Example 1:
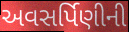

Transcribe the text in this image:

અવસર્પિણીની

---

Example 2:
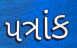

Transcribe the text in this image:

પત્રાંક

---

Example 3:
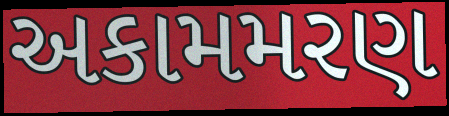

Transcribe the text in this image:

અકામમરણ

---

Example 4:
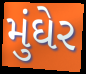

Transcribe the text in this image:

મુંઘેર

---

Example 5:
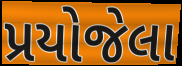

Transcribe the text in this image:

પ્રયોજેલા